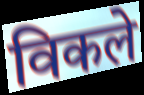
विकले